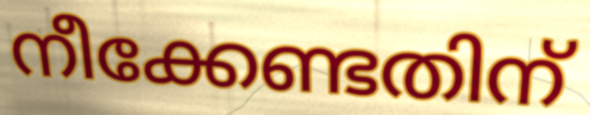
നീക്കേണ്ടതിന്